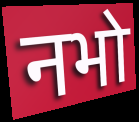
नभो